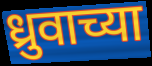
ध्रुवाच्या